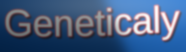
Geneticaly